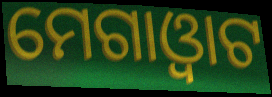
ମେଗାଓ୍ୱାଟ